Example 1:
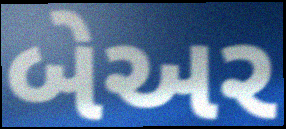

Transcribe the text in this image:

બેઅર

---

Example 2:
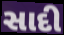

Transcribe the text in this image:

સાદી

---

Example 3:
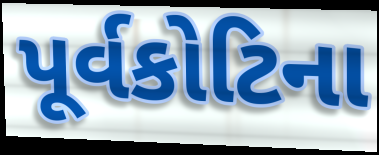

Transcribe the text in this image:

પૂર્વકોટિના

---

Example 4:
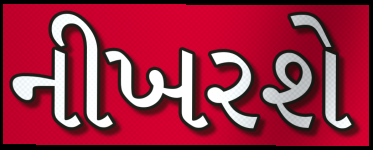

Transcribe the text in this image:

નીખરશે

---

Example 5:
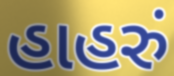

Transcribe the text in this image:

હાહરું